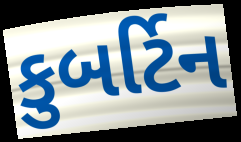
કુબર્ટિન